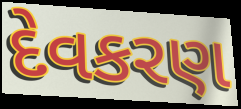
દેવકરણ